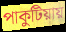
পাকুটিয়ায়